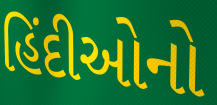
હિંદીઓનો